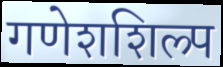
गणेशशिल्प